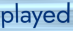
played